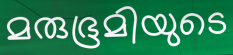
മരുഭൂമിയുടെ